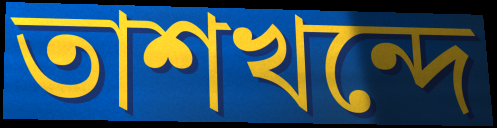
তাশখন্দে